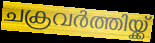
ചക്രവർത്തിയ്ക്ക്